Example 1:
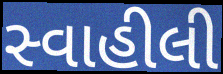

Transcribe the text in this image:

સ્વાહીલી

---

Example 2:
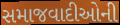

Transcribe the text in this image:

સમાજવાદીઓની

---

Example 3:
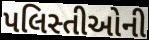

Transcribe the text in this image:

પલિસ્તીઓની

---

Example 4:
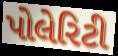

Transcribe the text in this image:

પોલેરિટી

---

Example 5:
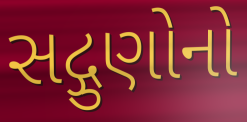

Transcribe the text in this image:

સદ્ગુણોનો